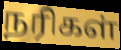
நரிகள்